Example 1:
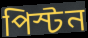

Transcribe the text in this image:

পিস্টন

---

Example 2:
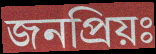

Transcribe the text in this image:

জনপ্রিয়ঃ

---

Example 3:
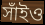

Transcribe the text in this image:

সাঁইও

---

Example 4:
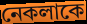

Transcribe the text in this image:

নেকলাকে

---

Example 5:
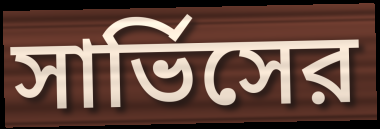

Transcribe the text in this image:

সার্ভিসের